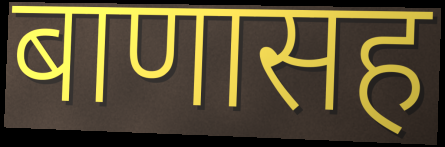
बाणासह